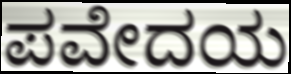
ಪವೇದಯ